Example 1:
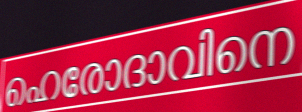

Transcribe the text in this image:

ഹെരോദാവിനെ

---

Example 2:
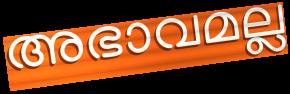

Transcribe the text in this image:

അഭാവമല്ല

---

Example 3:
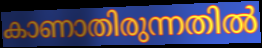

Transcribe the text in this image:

കാണാതിരുന്നതിൽ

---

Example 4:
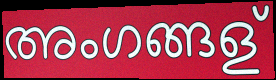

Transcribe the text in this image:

അംഗങ്ങള്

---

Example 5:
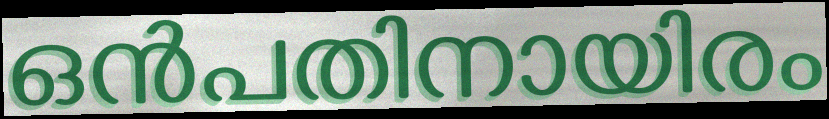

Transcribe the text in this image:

ഒൻപതിനായിരം